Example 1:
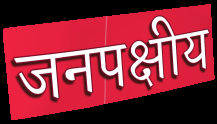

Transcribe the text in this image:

जनपक्षीय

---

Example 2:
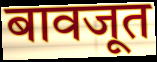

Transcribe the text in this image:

बावजूत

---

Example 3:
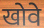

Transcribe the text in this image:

खोवे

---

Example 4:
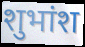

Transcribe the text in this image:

शुभांश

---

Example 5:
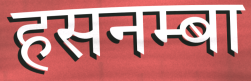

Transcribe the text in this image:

हसनम्बा